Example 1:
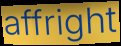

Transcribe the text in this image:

affright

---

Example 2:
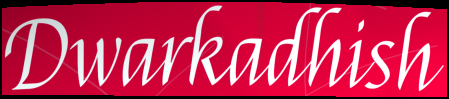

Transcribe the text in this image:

Dwarkadhish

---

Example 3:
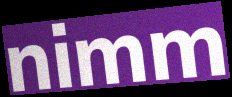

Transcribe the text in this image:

nimm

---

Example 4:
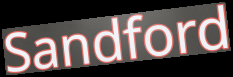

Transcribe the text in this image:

Sandford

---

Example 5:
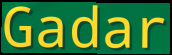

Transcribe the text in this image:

Gadar